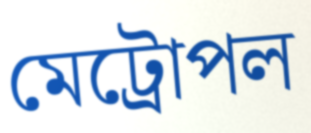
মেট্রোপল